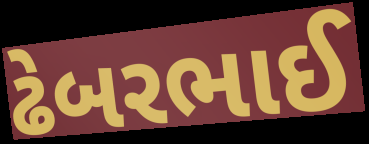
ઢેબરભાઈ